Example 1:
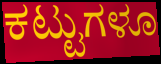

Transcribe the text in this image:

ಕಟ್ಟುಗಳೂ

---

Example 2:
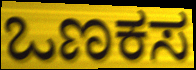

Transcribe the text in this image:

ಒಣಕಸ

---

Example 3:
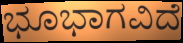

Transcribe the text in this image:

ಭೂಭಾಗವಿದೆ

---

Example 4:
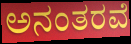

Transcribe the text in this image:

ಅನಂತರವೆ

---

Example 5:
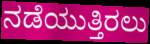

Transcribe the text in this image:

ನಡೆಯುತ್ತಿರಲು